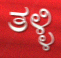
ತಳ್ಳಿ